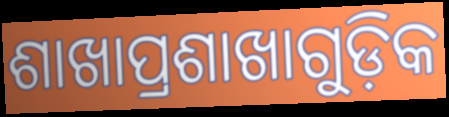
ଶାଖାପ୍ରଶାଖାଗୁଡ଼ିକ